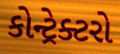
કોન્ટ્રેક્ટરો